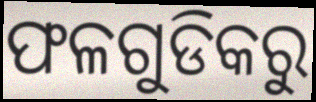
ଫଳଗୁଡିକରୁ